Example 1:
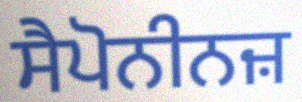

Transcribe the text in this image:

ਸੈਪੋਨੀਨਜ਼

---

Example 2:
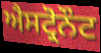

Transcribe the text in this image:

ਐਸਟ੍ਰੋਨੌਟ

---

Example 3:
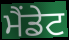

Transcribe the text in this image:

ਮੈਂਡੇਟ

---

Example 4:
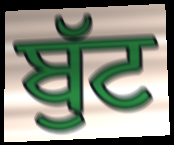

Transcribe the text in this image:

ਬੁੱਟ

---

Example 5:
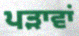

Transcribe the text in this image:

ਪੜਾਵਾਂ